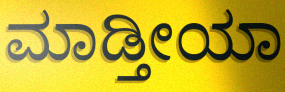
ಮಾಡ್ತೀಯಾ